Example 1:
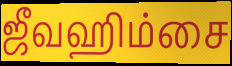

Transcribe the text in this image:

ஜீவஹிம்சை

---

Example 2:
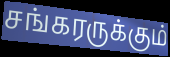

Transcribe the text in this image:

சங்கரருக்கும்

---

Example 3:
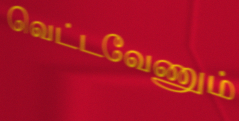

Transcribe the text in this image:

வெட்டவேணும்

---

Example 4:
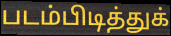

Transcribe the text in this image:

படம்பிடித்துக்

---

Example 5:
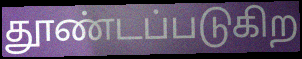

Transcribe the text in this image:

தூண்டப்படுகிற